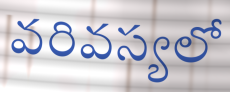
వరివస్యలో